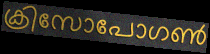
ക്രിസോപോഗൺ